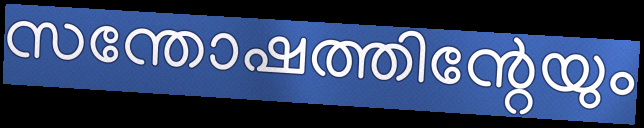
സന്തോഷത്തിന്റേയും